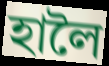
হালৈ